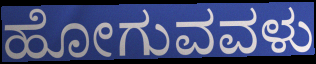
ಹೋಗುವವಳು